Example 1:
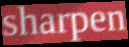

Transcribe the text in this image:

sharpen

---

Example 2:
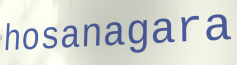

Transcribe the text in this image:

hosanagara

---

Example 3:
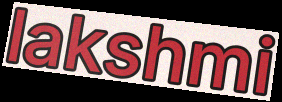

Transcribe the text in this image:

lakshmi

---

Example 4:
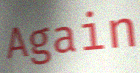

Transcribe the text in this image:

Again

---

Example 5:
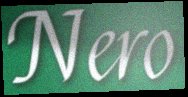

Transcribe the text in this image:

Nero